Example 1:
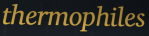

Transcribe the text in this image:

thermophiles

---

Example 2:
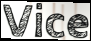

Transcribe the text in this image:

Vice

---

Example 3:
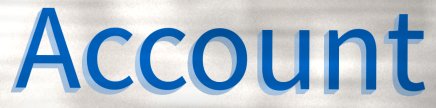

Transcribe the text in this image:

Account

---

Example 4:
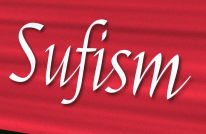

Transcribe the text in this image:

Sufism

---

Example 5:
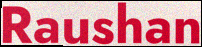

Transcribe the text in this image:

Raushan